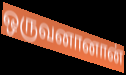
ஒருவனானான்